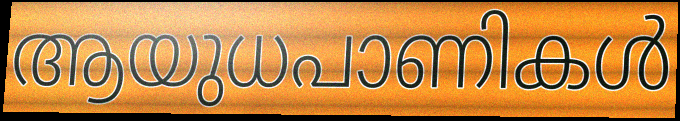
ആയുധപാണികൾ